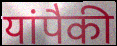
यांपैकी